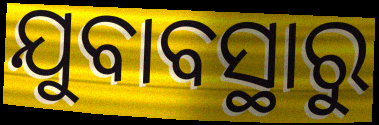
ଯୁବାବସ୍ଥାରୁ